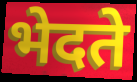
भेदते